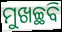
ମୁଖଚ୍ଛବି